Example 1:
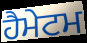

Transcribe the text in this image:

ਹੈਮੇਟਮ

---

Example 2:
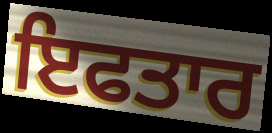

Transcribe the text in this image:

ਇਫਤਾਰ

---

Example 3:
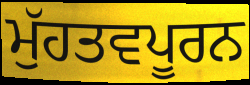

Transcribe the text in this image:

ਮੁੱਹਤਵਪੂਰਨ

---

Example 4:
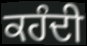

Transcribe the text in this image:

ਕਹੰਦੀ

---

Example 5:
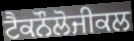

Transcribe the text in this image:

ਟੈਕਨੌਲੋਜੀਕਲ